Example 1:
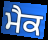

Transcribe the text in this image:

ਮੈਕ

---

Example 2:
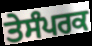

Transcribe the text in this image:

ਤੇਸੰਪਰਕ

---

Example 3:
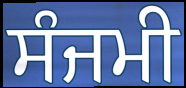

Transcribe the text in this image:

ਸੰਜਮੀ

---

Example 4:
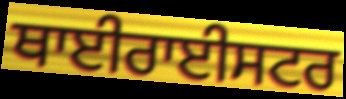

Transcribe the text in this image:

ਥਾਈਰਾਈਸਟਰ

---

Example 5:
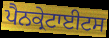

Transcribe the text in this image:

ਪੈਨਕ੍ਰੇਟਾਈਟਸ